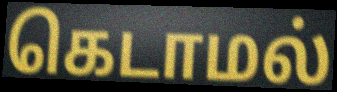
கெடாமல்